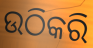
ଉଠିକରି